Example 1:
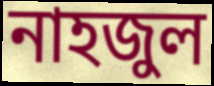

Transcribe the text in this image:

নাহজুল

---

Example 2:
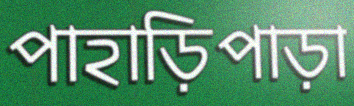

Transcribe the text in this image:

পাহাড়িপাড়া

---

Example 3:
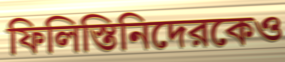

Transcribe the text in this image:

ফিলিস্তিনিদেরকেও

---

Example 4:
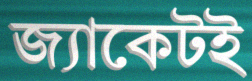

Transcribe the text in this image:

জ্যাকেটই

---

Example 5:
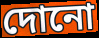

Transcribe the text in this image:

দোনো